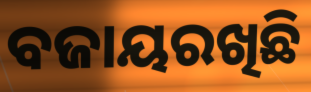
ବଜାୟରଖିଛି